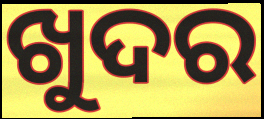
ଖୁଦର